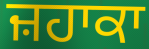
ਜ਼ਹਾਕਾ